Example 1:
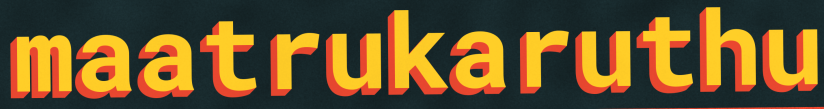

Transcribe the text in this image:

maatrukaruthu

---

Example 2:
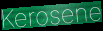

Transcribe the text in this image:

Kerosene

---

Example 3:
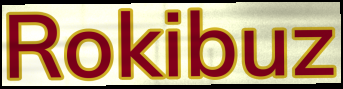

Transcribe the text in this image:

Rokibuz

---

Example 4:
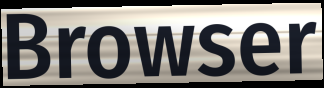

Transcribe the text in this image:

Browser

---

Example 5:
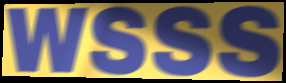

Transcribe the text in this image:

WSSS